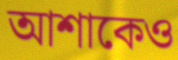
আশাকেও